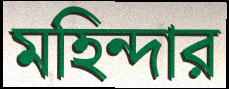
মহিন্দার